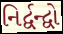
નિર્દ્વન્દ્વો